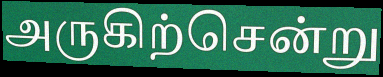
அருகிற்சென்று